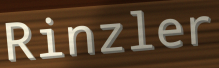
Rinzler